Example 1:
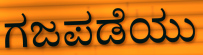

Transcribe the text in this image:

ಗಜಪಡೆಯು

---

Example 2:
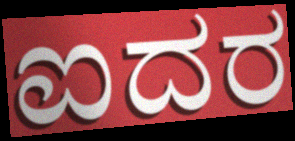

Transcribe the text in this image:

ಐದರ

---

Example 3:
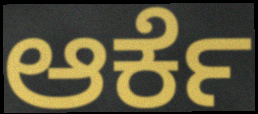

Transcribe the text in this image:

ಆರ್ಕೆ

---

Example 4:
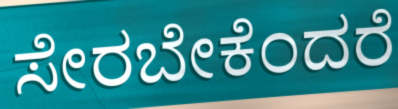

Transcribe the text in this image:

ಸೇರಬೇಕೆಂದರೆ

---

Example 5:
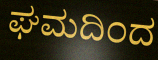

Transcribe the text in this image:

ಘಮದಿಂದ